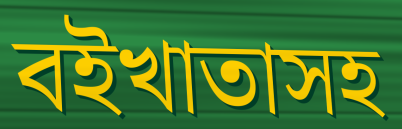
বইখাতাসহ